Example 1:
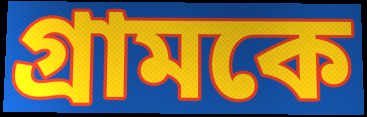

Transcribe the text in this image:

গ্রামকে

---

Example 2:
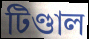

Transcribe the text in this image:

টিণ্ডাল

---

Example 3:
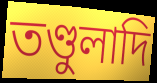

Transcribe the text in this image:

তণ্ডুলাদি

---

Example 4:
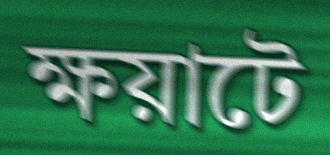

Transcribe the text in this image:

ক্ষয়াটে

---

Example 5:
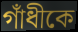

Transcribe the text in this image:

গাঁধীকে